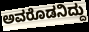
ಅವರೊಡನಿದ್ದು